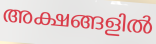
അക്ഷങ്ങളിൽ